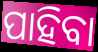
ପାହିବା